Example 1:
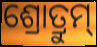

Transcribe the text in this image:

ଶ୍ରୋତ୍ରୁମ୍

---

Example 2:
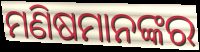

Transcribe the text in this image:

ମଣିଷମାନଙ୍କର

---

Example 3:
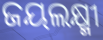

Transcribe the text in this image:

ଜୟଲକ୍ଷ୍ମୀ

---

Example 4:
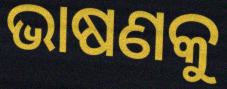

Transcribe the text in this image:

ଭାଷଣକୁ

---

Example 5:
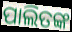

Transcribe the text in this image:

ପାଲିତଙ୍କ